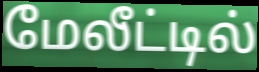
மேலீட்டில்